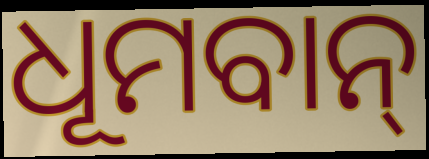
ଧୂମବାନ୍